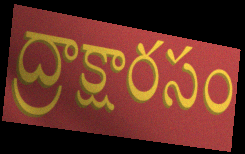
ద్రాక్షారసం